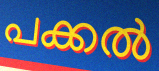
പക്കൽ